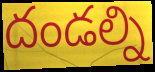
దండల్ని